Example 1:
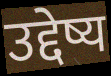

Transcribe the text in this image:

उद्देष्य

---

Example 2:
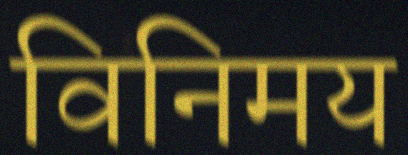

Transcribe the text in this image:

विनिमय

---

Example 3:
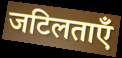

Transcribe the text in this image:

जटिलताएँ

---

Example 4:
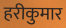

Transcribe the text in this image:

हरीकुमार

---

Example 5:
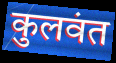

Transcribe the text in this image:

कुलवंत